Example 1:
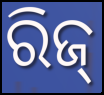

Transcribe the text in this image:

ରିଜ୍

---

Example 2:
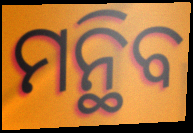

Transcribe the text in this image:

ମନ୍ଥିବ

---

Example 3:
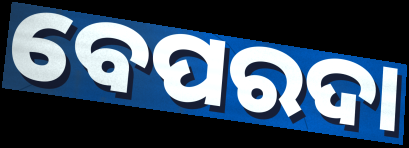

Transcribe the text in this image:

ବେପରଦା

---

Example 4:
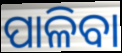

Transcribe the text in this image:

ପାଳିବା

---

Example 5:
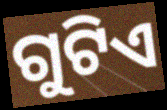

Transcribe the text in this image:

ଗୁଟିଏ